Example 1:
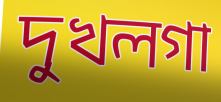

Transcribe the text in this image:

দুখলগা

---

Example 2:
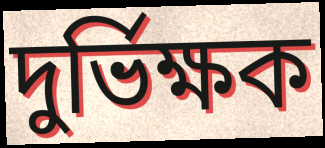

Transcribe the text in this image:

দুৰ্ভিক্ষক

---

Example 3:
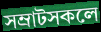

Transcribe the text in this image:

সম্ৰাটসকলে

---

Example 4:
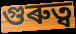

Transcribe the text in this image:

গুৰুত্ব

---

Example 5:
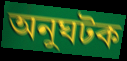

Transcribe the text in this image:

অনুঘটক